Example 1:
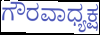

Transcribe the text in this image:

ಗೌರವಾಧ್ಯಕ್ಷ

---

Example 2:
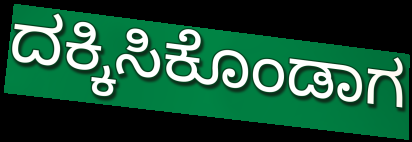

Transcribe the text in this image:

ದಕ್ಕಿಸಿಕೊಂಡಾಗ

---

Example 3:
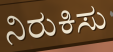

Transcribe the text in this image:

ನಿರುಕಿಸು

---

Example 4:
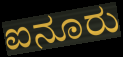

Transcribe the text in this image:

ಐನೂರು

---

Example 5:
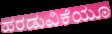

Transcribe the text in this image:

ಹರಡುವಿಕೆಯೂ